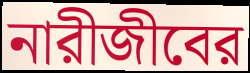
নারীজীবের